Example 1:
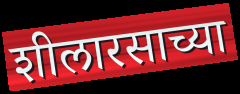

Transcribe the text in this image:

शीलारसाच्या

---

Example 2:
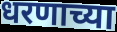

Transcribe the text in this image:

धरणाच्या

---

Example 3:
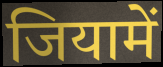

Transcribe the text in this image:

जियामें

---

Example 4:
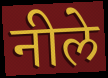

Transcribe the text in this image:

नीले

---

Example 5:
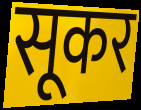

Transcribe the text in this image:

सूकर